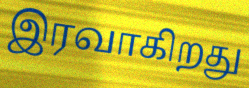
இரவாகிறது